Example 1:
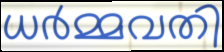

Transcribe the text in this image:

ധർമ്മവതി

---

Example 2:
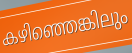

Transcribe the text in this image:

കഴിഞ്ഞെങ്കിലും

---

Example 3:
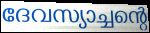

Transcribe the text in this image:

ദേവസ്യാച്ചന്റെ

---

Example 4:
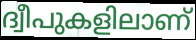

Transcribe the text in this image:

ദ്വീപുകളിലാണ്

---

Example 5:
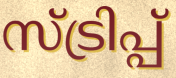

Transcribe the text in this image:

സ്ട്രിപ്പ്